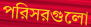
পরিসরগুলো